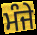
ਮੰਜੇ